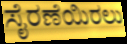
ಸೈರಣೆಯಿರಲು